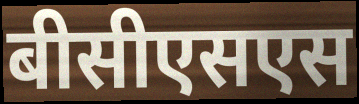
बीसीएसएस